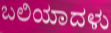
ಬಲಿಯಾದಳು